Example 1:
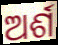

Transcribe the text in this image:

ଅର୍ଶ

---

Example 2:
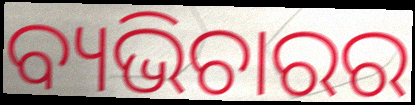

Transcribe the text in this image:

ବ୍ୟଭିଚାରର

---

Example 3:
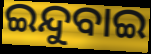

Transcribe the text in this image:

ଇନ୍ଦୁବାଇ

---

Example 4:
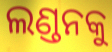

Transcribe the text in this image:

ଲଣ୍ଡନକୁ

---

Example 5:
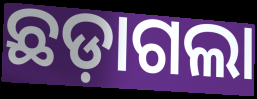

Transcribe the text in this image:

ଛଡ଼ାଗଲା